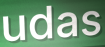
udas